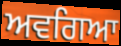
ਅਵਗਿਆ